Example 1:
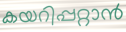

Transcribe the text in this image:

കയറിപ്പറ്റാൻ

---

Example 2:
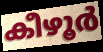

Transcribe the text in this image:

കീഴൂർ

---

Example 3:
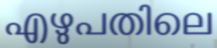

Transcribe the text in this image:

എഴുപതിലെ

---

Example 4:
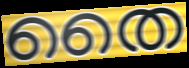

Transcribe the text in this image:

തൈ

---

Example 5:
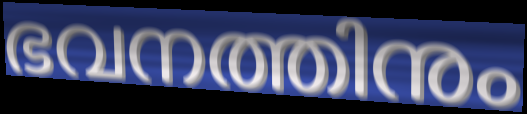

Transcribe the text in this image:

ഭവനത്തിനും